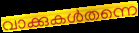
വാക്കുകൾതന്നെ